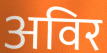
अविर